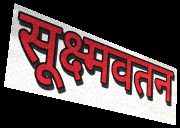
सूक्ष्मवतन